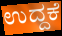
ಉದ್ದಕೆ